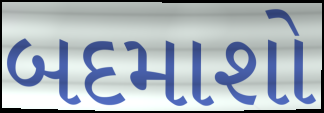
બદમાશો